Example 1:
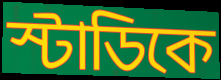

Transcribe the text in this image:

স্টাডিকে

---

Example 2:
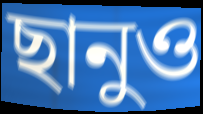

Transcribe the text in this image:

ছানুও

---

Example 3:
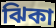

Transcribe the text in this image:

ঝিকা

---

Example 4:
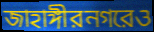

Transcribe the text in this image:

জাহাঙ্গীরনগরেও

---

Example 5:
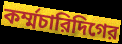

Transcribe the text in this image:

কর্ম্মচারিদিগের